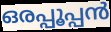
ഒരപ്പൂപ്പൻ